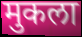
मुकला